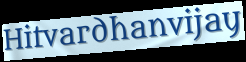
Hitvardhanvijay